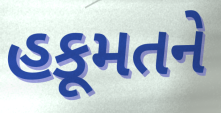
હકૂમતને